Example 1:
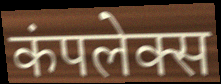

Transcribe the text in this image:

कंपलेक्स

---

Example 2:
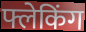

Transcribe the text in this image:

फ्लेकिंग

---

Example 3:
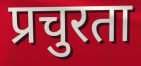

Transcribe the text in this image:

प्रचुरता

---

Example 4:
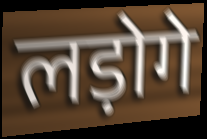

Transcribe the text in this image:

लड़ोगे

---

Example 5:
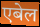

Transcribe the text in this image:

एबेल